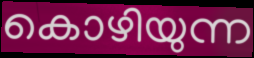
കൊഴിയുന്ന